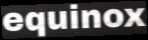
equinox